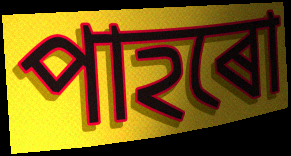
পাহৰো